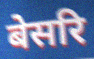
बेसरि